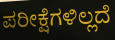
ಪರೀಕ್ಷೆಗಳಿಲ್ಲದೆ